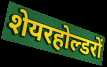
शेयरहोल्डरों